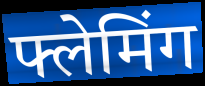
फ्लेमिंग